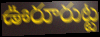
ఊరూరుట్ట